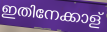
ഇതിനേക്കാള്